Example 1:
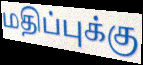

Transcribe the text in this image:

மதிப்புக்கு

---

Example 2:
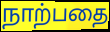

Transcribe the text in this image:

நாற்பதை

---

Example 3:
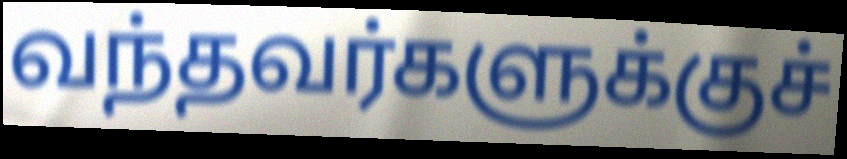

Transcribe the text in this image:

வந்தவர்களுக்குச்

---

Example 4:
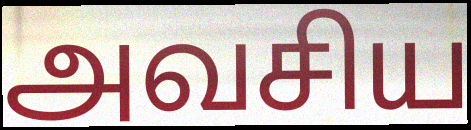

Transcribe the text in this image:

அவசிய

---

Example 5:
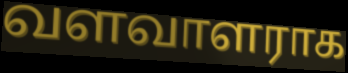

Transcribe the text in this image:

வளவாளராக